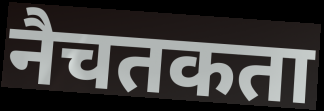
नैचतकता